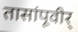
तासांपूवीर्